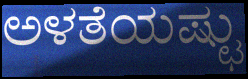
ಅಳತೆಯಷ್ಟು